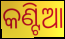
କଣ୍ଟିଆ